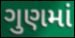
ગુણમાં